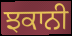
ਝਕਾਨੀ